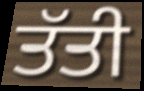
ਤੱਤੀ